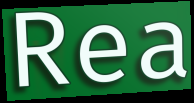
Rea